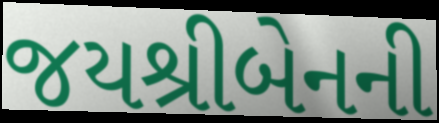
જયશ્રીબેનની